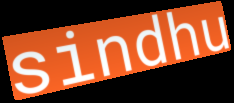
sindhu